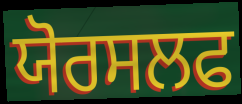
ਯੋਰਸਲਫ